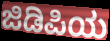
ಜಿಡಿಪಿಯ